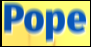
Pope